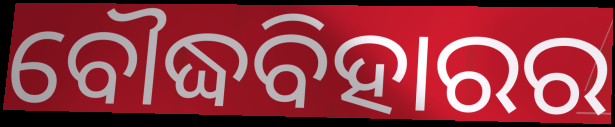
ବୌଦ୍ଧବିହାରର